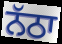
ਨੱਠਾ